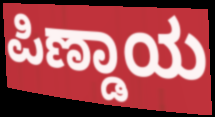
ಪಿಣ್ಡಾಯ